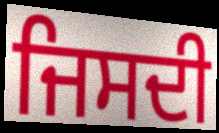
ਜਿਸਦੀ